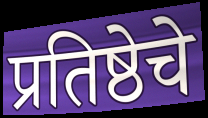
प्रतिष्ठेचे